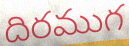
దిరముగ